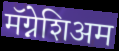
मॅग्नेशिअम